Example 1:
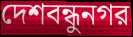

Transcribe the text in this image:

দেশবন্ধুনগর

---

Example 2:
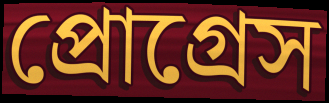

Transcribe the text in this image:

প্রোগ্রেস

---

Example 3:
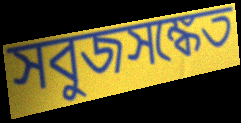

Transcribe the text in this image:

সবুজসঙ্কেত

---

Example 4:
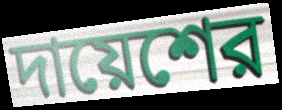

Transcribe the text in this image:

দায়েশের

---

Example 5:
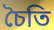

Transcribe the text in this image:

চৈতি